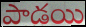
పాడయి